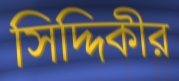
সিদ্দিকীর